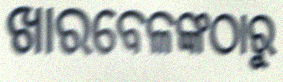
ଖାରବେଳଙ୍କଠାରୁ